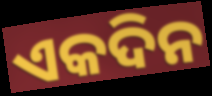
ଏକଦିନ